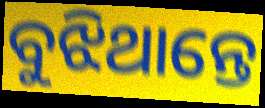
ବୁଝିଥାନ୍ତେ